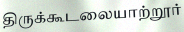
திருக்கூடலையாற்றூர்